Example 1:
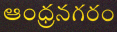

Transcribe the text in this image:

ఆంధ్రనగరం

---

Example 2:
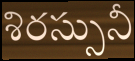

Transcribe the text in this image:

శిరస్సునీ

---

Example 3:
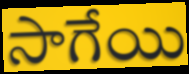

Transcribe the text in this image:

సాగేయి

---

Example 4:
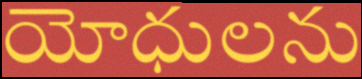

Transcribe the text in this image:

యోధులను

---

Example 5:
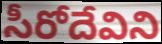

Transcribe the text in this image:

సీరోదేవిని